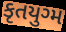
કૃતયુગ્મ